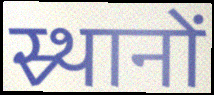
स्र्थानों